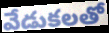
వేడుకలతో